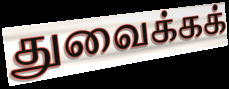
துவைக்கக்